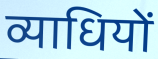
व्याधियों